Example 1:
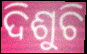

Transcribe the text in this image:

ଦିଶୁଚି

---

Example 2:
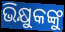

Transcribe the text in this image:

ଭିକ୍ଷୁକଙ୍କୁ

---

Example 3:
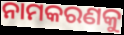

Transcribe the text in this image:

ନାମକରଣକୁ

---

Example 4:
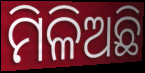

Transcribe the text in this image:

ମିଳିଅଛି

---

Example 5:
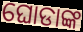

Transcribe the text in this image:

ଘୋଡାଙ୍କ